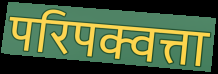
परिपक्वत्ता